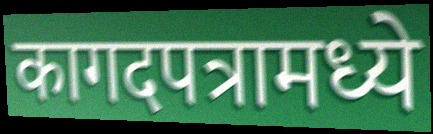
कागदपत्रामध्ये